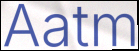
Aatm